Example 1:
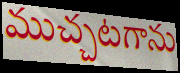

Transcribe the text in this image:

ముచ్చటగాను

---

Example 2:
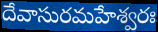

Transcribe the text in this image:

దేవాసురమహేశ్వరః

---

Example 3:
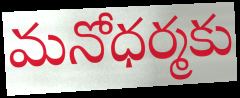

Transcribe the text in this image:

మనోధర్మకు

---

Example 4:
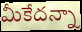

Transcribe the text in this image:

మీకేదన్నా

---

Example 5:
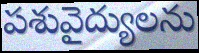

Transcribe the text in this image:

పశువైద్యులను